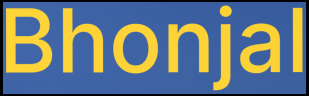
Bhonjal